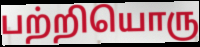
பற்றியொரு